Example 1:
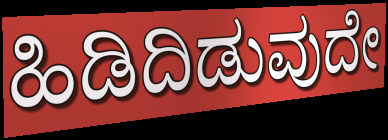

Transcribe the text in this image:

ಹಿಡಿದಿಡುವುದೇ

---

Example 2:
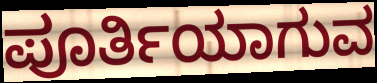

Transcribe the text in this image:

ಪೂರ್ತಿಯಾಗುವ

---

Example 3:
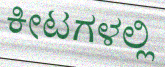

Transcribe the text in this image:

ಕೀಟಗಳಲ್ಲಿ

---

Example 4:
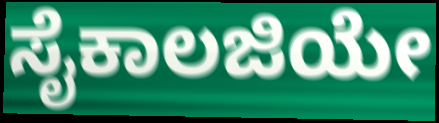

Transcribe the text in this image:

ಸೈಕಾಲಜಿಯೇ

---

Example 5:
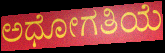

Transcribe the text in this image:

ಅಧೋಗತಿಯೆ